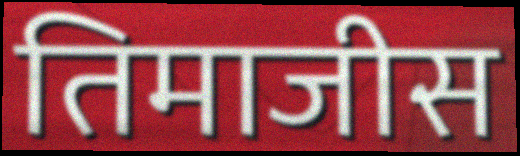
तिमाजीस